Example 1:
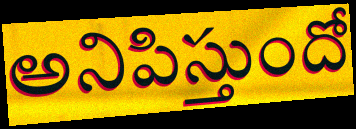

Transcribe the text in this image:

అనిపిస్తుందో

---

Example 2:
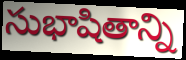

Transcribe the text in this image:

సుభాషితాన్ని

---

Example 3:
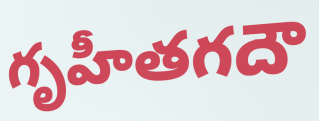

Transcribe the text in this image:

గృహీతగదౌ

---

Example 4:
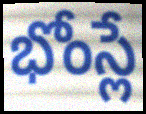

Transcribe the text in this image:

భోంస్లే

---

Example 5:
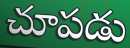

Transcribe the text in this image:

చూపడు